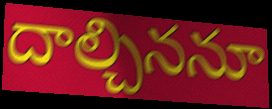
దాల్చిననూ